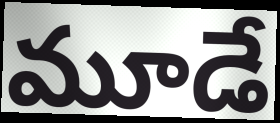
మూడే